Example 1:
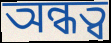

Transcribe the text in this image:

অন্ধত্ব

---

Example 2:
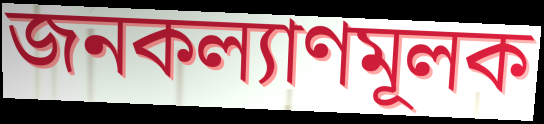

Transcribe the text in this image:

জনকল্যাণমূলক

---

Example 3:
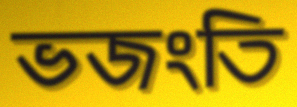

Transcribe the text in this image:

ভজংতি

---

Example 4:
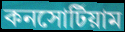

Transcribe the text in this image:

কনসোর্টিয়াম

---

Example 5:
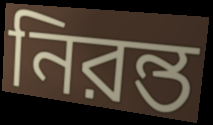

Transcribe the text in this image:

নিরন্ত